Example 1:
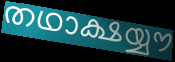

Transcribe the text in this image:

തഥാക്ഷയ്യൗ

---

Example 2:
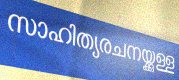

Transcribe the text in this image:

സാഹിത്യരചനയ്ക്കുള്ള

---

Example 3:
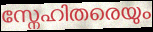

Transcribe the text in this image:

സ്നേഹിതരെയും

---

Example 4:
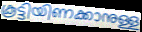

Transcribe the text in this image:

കൂട്ടിയിണക്കാനുള്ള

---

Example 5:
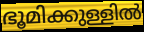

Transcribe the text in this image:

ഭൂമിക്കുള്ളിൽ